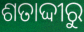
ଶତାଦ୍ଦୀରୁ